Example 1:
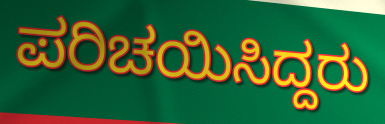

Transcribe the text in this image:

ಪರಿಚಯಿಸಿದ್ದರು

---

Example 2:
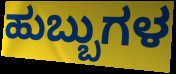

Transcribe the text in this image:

ಹುಬ್ಬುಗಳ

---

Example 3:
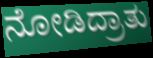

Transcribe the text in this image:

ನೋಡಿದ್ರಾತು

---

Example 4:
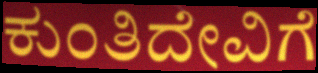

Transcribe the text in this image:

ಕುಂತಿದೇವಿಗೆ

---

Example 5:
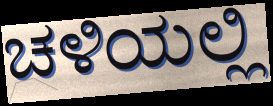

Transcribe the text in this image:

ಚಳಿಯಲ್ಲಿ